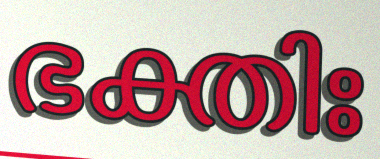
ഭക്തിഃ